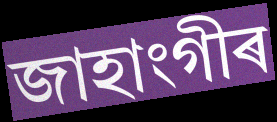
জাহাংগীৰ